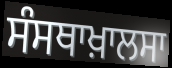
ਸੰਸਥਾਖ਼ਾਲਸਾ